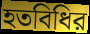
হতবিধির